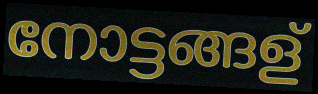
നോട്ടങ്ങള്